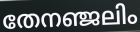
തേനഞ്ജലിം